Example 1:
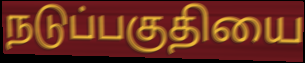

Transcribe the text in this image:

நடுப்பகுதியை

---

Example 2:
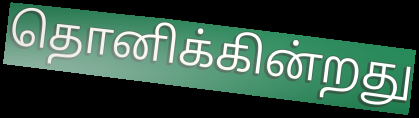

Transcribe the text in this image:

தொனிக்கின்றது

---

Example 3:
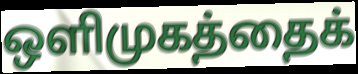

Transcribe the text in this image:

ஒளிமுகத்தைக்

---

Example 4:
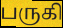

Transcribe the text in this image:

பருகி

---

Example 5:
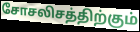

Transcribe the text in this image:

சோசலிசத்திற்கும்